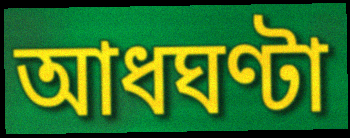
আধঘণ্টা